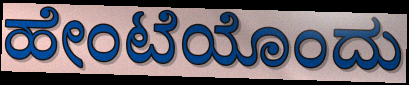
ಹೇಂಟೆಯೊಂದು